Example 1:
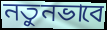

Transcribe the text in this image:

নতুনভাবে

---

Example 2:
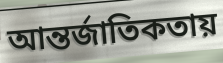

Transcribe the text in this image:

আন্তর্জাতিকতায়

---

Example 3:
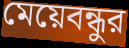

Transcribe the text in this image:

মেয়েবন্ধুর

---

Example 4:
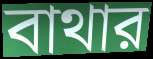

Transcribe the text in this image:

বাথার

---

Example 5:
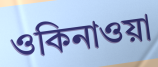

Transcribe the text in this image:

ওকিনাওয়া